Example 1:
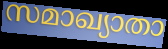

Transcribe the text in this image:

സമാഖ്യാതാ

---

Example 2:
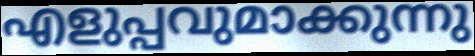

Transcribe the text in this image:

എളുപ്പവുമാക്കുന്നു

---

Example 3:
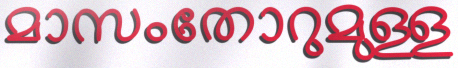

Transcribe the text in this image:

മാസംതോറുമുള്ള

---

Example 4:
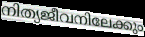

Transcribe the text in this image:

നിത്യജീവനിലേക്കും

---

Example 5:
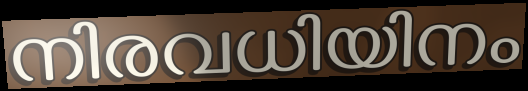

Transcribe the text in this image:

നിരവധിയിനം